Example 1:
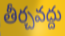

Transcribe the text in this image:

తీర్చవద్దు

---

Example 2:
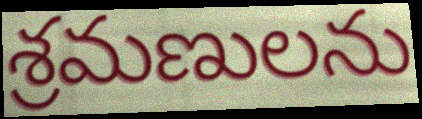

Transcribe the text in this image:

శ్రమణులను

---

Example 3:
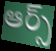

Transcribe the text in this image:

ఆర్స్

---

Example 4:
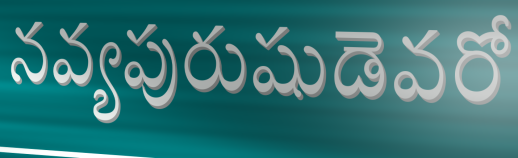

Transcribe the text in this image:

నవ్యపురుషుడెవరో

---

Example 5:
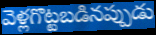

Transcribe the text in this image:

వెళ్లగొట్టబడినప్పుడు